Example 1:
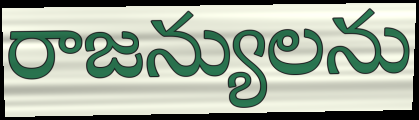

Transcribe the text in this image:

రాజన్యులను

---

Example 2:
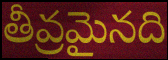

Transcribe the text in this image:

తీవ్రమైనది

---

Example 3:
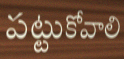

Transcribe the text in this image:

పట్టుకోవాలి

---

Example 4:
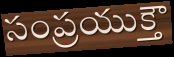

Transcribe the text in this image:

సంప్రయుక్తౌ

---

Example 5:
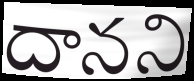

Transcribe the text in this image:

దానని